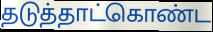
தடுத்தாட்கொண்ட